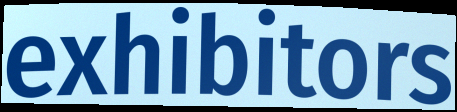
exhibitors